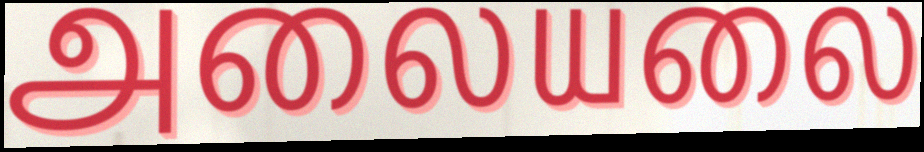
அலையலை